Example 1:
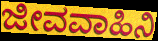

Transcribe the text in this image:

ಜೀವವಾಹಿನಿ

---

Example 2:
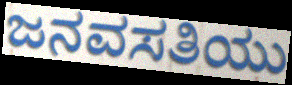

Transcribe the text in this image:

ಜನವಸತಿಯು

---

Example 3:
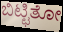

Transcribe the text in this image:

ಬಿಟ್ಟಿತೋ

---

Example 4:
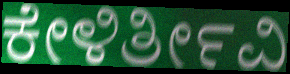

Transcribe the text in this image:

ಕೇಳಿರ್ತೀವಿ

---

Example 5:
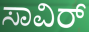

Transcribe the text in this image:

ಸಾವಿರ್